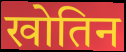
खोतिन